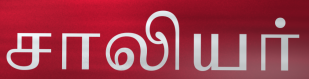
சாலியர்